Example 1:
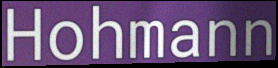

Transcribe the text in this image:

Hohmann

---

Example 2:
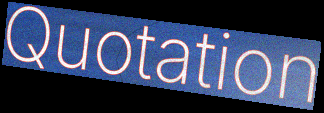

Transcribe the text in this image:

Quotation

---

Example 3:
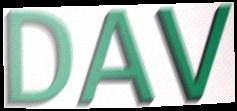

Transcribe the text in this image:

DAV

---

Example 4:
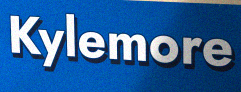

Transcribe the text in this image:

Kylemore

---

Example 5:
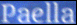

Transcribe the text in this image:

Paella